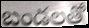
బండలతో